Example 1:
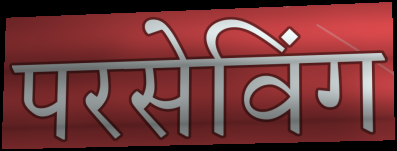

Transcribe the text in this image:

परसेविंग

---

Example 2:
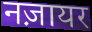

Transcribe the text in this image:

नज़ायर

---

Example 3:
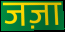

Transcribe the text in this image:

जज़ा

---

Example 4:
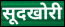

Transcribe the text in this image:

सूदखोरी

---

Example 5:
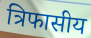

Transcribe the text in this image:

त्रिफासीय